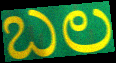
ಬಲ